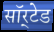
सॉर्टेड